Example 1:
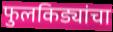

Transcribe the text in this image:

फुलकिड्यांचा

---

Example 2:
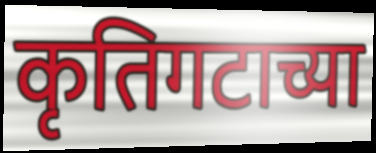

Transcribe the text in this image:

कृतिगटाच्या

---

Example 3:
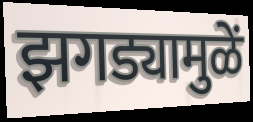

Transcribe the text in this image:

झगड्यामुळें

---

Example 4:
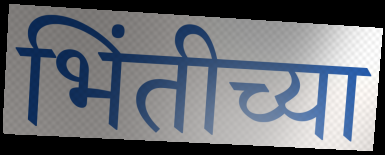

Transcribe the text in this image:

भिंतीच्या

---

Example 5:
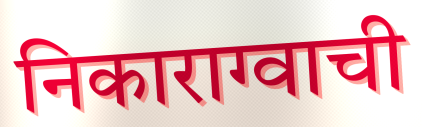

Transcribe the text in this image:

निकाराग्वाची